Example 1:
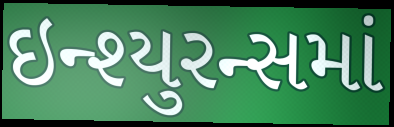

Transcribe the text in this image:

ઇન્શ્યુરન્સમાં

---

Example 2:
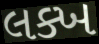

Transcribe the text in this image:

લક્ખ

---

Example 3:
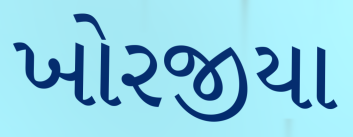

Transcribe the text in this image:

ખોરજીયા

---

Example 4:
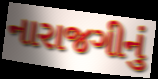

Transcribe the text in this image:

નારાજગીનું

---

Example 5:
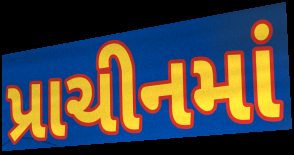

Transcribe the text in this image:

પ્રાચીનમાં